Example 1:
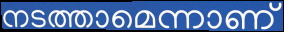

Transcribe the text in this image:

നടത്താമെന്നാണ്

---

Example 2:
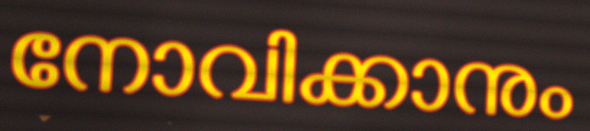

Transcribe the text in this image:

നോവിക്കാനും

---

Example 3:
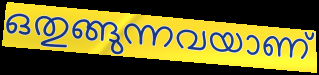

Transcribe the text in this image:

ഒതുങ്ങുന്നവയാണ്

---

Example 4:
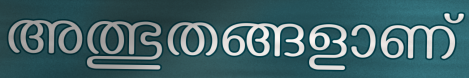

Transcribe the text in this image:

അത്ഭുതങ്ങളാണ്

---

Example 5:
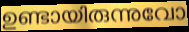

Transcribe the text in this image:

ഉണ്ടായിരുന്നുവോ